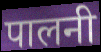
पालनी